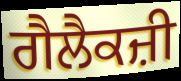
ਗੈਲੈਕਜ਼ੀ